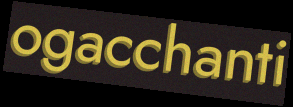
ogacchanti